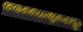
അധൈര്യപ്പെട്ടും